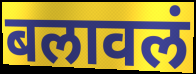
बलावलं